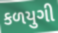
કળયુગી